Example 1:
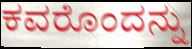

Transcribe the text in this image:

ಕವರೊಂದನ್ನು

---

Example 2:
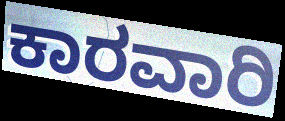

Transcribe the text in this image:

ಕಾರವಾರಿ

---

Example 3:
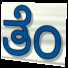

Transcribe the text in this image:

ತೆಂ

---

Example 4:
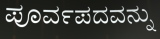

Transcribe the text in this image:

ಪೂರ್ವಪದವನ್ನು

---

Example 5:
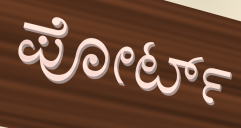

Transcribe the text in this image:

ಪೋರ್ಟ್